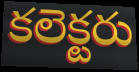
కలెక్టరు